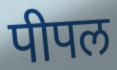
पीपल